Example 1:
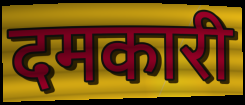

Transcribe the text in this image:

दमकारी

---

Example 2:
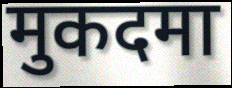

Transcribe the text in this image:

मुकदमा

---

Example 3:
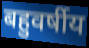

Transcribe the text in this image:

बहुवर्षीय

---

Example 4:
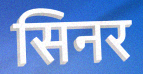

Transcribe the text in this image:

सिनर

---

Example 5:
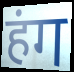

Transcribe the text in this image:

हंग